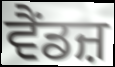
ਵੈਂਡਜ਼